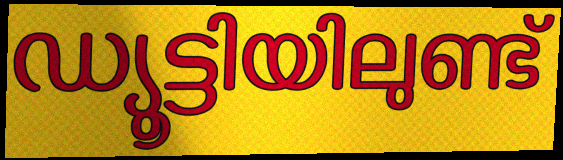
ഡ്യൂട്ടിയിലുണ്ട്